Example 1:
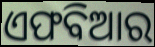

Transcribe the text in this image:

ଏଫବିଆର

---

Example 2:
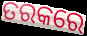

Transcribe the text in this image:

ତରକରେ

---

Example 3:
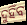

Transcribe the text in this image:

ଦୁହିଁବ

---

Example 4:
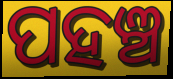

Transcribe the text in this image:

ପହଞ୍ଚ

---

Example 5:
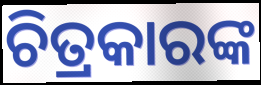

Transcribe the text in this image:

ଚିତ୍ରକାରଙ୍କ